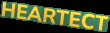
HEARTECT